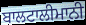
ਬਾਲਟਾਲੀਮਾਨੀ